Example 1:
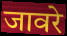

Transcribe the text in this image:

जावरे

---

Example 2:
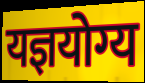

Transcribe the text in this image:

यज्ञयोग्य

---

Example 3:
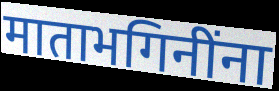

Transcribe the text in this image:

माताभगिनींना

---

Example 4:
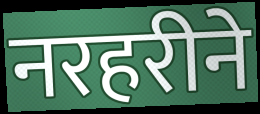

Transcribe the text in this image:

नरहरीने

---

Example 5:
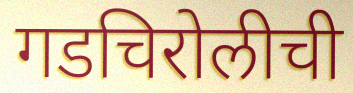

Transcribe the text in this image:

गडचिरोलीची